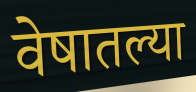
वेषातल्या